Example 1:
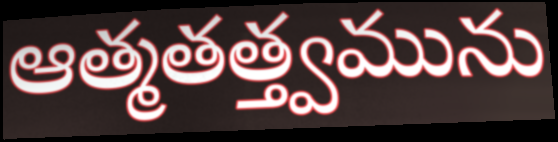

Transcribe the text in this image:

ఆత్మతత్త్వమును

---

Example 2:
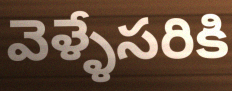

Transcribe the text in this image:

వెళ్ళేసరికి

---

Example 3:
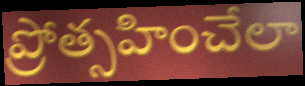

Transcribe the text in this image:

ప్రోత్సహించేలా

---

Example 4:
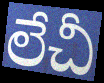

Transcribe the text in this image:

లేచీ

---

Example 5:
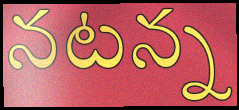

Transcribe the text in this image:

నటన్న